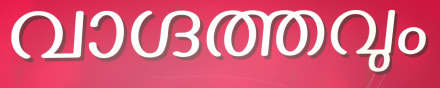
വാഗ്ദത്തവും